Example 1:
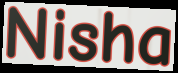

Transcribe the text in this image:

Nisha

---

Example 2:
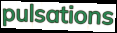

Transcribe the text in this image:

pulsations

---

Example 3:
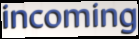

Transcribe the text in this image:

incoming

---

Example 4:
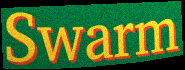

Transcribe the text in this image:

Swarm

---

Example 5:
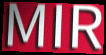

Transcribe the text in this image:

MIR